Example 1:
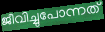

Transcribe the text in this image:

ജീവിച്ചുപോന്നത്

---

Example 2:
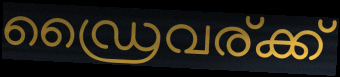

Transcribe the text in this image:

ഡ്രൈവര്ക്ക്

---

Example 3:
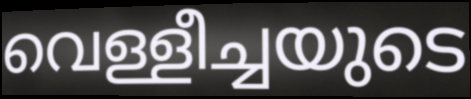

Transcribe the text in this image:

വെള്ളീച്ചയുടെ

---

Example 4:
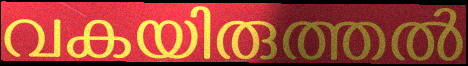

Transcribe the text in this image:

വകയിരുത്തൽ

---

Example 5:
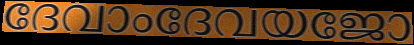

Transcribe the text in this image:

ദേവാംദേവയജോ